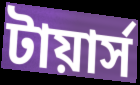
টায়ার্স